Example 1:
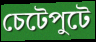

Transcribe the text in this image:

চেটেপুটে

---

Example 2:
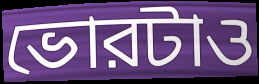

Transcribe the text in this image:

ভোরটাও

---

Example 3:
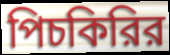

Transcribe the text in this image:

পিচকিরির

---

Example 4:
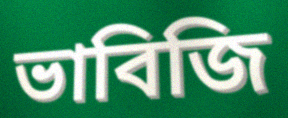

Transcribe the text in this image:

ভাবিজি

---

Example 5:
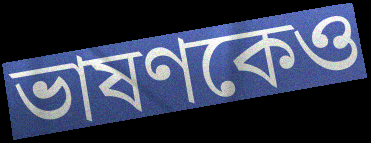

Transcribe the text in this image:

ভাষণকেও